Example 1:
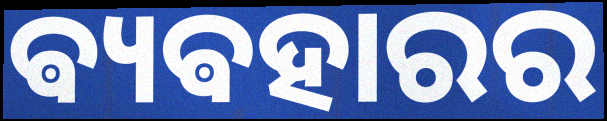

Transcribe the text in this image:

ଵ୍ୟଵହାରର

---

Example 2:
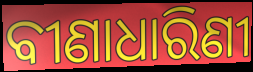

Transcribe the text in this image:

ବୀଣାଧାରିଣୀ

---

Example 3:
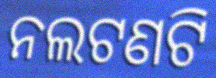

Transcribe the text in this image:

ନଲଟଣଟି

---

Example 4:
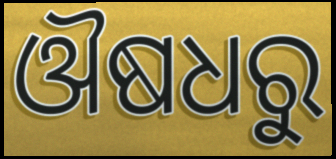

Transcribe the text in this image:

ଔଷଧରୁ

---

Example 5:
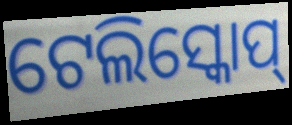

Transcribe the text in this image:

ଟେଲିସ୍କୋପ୍